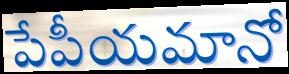
పేపీయమానో